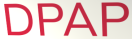
DPAP